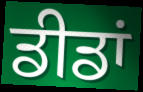
ਡੀਡਾਂ